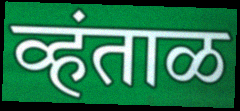
व्हंताळ